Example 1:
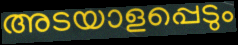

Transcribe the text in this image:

അടയാളപ്പെടും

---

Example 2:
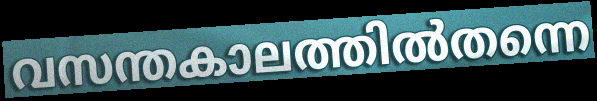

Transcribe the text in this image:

വസന്തകാലത്തിൽതന്നെ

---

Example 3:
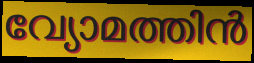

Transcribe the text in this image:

വ്യോമത്തിൻ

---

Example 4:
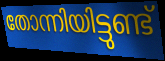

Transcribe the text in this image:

തോന്നിയിട്ടുണ്ട്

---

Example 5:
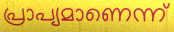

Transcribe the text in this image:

പ്രാപ്യമാണെന്ന്